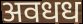
अवधध